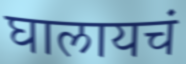
घालायचं